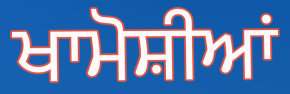
ਖਾਮੋਸ਼ੀਆਂ